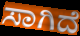
ಸಾಗಿದೆ